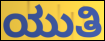
ಯುತಿ